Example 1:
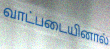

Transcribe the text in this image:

வாட்படையினால்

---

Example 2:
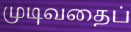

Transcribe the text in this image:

முடிவதைப்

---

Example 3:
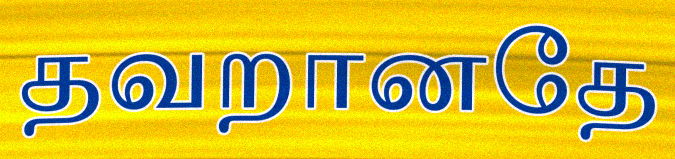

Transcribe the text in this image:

தவறானதே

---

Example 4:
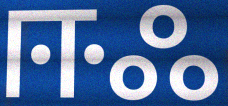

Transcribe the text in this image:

ஈஃ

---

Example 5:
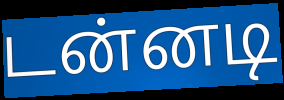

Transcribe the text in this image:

டன்னடி